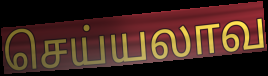
செய்யலாவ